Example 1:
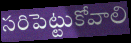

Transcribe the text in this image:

సరిపెట్టుకోవాలి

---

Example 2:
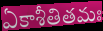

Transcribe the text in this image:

ఏకాశీతితమః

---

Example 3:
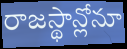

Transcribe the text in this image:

రాజస్థాన్లోనూ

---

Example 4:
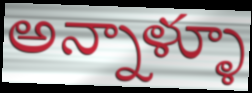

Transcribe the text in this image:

అన్నాళ్ళూ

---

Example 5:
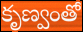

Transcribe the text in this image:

కృణ్వంతో